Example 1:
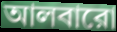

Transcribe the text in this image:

আলবারো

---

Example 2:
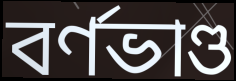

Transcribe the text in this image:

বর্ণভাণ্ড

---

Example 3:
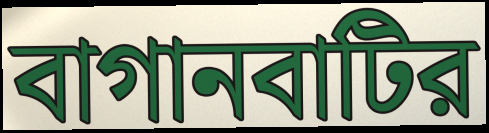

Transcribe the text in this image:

বাগানবাটির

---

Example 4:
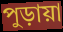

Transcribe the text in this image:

পুড়ায়া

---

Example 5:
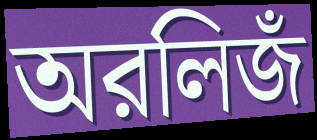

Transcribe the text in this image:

অরলিজঁ